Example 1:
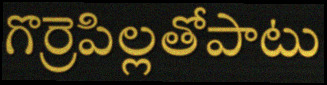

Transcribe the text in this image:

గొర్రెపిల్లతోపాటు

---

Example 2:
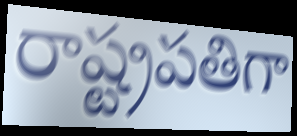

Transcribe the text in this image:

రాష్ట్రపతిగా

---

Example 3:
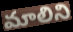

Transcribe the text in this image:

మాలిని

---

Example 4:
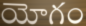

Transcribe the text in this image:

యోగం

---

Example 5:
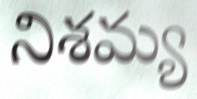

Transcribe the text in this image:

నిశమ్య